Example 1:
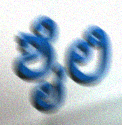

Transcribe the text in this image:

ಶೈಲಿ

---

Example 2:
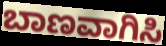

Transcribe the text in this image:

ಬಾಣವಾಗಿಸಿ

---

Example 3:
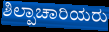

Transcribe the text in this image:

ಶಿಲ್ಪಾಚಾರಿಯರು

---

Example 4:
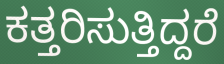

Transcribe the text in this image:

ಕತ್ತರಿಸುತ್ತಿದ್ದರೆ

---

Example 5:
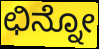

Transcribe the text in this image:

ಛಿನ್ನೋ